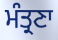
ਮੰਤ੍ਰਣਾ